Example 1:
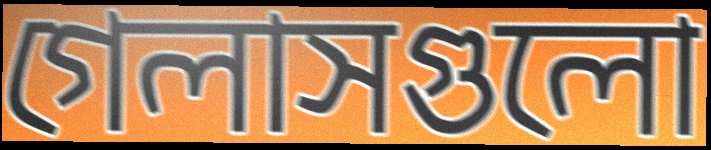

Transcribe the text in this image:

গেলাসগুলো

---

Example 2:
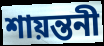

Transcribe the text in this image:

শায়ন্তনী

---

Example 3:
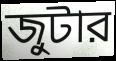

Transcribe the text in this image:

জুটার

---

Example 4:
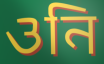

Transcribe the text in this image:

ওনি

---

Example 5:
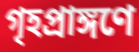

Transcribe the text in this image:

গৃহপ্রাঙ্গণে